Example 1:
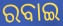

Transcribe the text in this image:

ରବାଇ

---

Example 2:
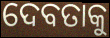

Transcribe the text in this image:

ଦେବତାକୁ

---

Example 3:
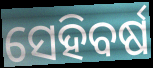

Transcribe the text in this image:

ସେହିବର୍ଷ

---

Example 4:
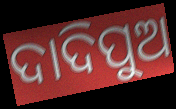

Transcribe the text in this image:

ଦାଦିପୁଅ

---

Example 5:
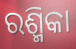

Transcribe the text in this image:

ରଶ୍ମିକା